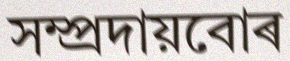
সম্প্ৰদায়বোৰ